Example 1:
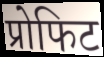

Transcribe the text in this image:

प्रोफिट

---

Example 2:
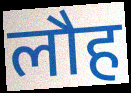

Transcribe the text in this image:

लौह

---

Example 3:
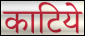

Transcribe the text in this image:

काटिये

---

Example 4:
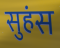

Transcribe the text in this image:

सुहंस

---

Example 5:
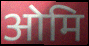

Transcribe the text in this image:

ओमि